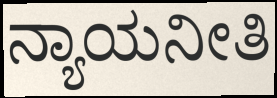
ನ್ಯಾಯನೀತಿ